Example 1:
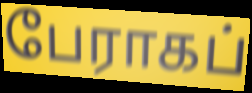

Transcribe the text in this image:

பேராகப்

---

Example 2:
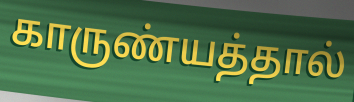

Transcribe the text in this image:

காருண்யத்தால்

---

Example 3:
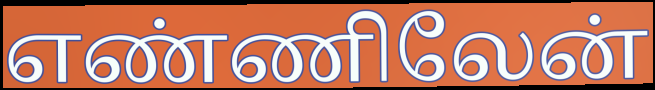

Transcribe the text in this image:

எண்ணிலேன்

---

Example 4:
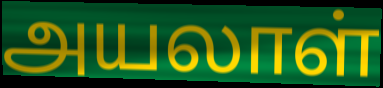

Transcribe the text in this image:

அயலாள்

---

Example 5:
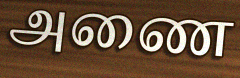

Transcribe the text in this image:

அணை